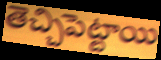
తెచ్చిపెట్టాయి